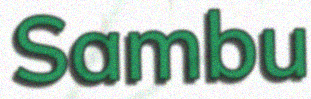
Sambu